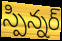
స్పిన్నర్